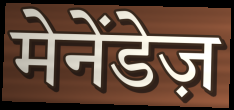
मेनेंडेज़